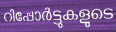
റിപ്പോർട്ടുകളുടെ